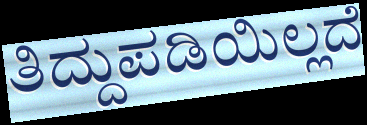
ತಿದ್ದುಪಡಿಯಿಲ್ಲದೆ